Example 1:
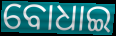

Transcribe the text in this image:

ବୋଧାଇ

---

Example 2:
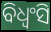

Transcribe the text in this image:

ବିଧ୍ୱଂସି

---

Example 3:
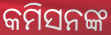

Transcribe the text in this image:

କମିସନଙ୍କ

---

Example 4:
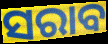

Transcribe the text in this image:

ସରାବ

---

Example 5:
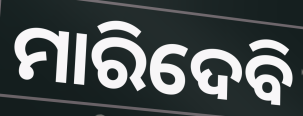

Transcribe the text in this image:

ମାରିଦେବି